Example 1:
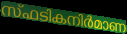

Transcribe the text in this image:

സ്ഫടികനിർമാണ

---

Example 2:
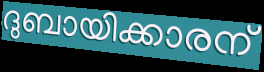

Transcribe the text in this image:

ദുബായിക്കാരന്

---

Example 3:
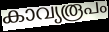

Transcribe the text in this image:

കാവ്യരൂപം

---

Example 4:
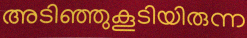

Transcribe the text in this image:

അടിഞ്ഞുകൂടിയിരുന്ന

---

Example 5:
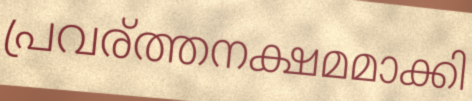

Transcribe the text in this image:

പ്രവര്ത്തനക്ഷമമാക്കി